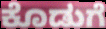
ಕೊಡುಗೆ